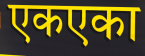
एकएका